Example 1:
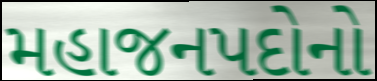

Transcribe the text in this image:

મહાજનપદોનો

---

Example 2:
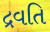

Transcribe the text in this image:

દ્રવતિ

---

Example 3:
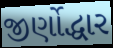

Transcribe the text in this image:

જીર્ણોદ્ધાર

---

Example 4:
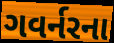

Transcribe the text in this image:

ગવર્નરના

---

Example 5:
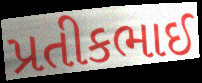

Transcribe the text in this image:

પ્રતીકભાઈ